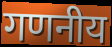
गणनीय